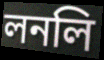
লনলি